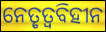
ନେତୃତ୍ୱବିହୀନ